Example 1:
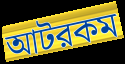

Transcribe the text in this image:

আটরকম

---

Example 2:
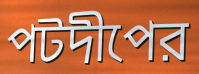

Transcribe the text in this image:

পটদীপের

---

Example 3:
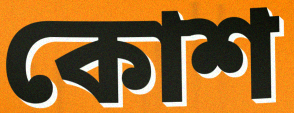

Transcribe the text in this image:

কোশ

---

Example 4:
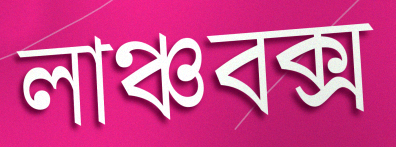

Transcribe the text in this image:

লাঞ্চবক্স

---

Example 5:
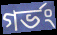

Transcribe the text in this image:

গর্ভং